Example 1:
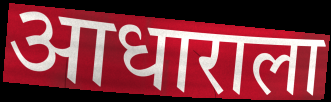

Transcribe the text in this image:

आधाराला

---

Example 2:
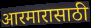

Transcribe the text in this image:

आरमारासाठी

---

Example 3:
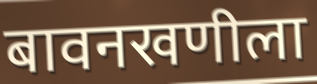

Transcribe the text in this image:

बावनखणीला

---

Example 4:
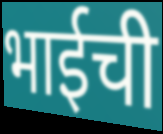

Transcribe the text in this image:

भाईची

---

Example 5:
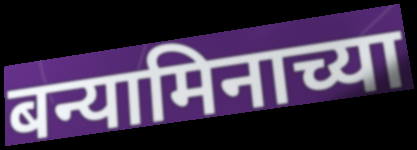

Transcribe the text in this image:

बन्यामिनाच्या